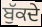
ਬੁੱਕਦੇ